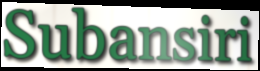
Subansiri